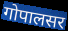
गोपालसर